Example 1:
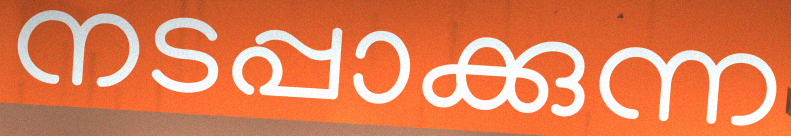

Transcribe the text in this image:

നടപ്പാക്കുന്ന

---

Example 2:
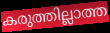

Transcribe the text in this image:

കരുത്തില്ലാത്ത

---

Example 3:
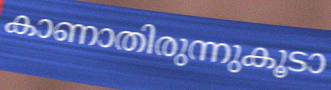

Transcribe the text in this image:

കാണാതിരുന്നുകൂടാ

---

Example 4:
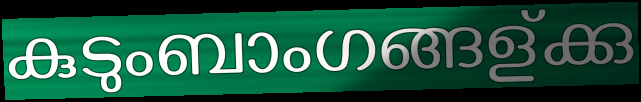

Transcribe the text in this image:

കുടുംബാംഗങ്ങള്ക്കു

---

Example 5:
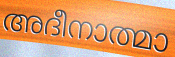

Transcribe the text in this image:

അദീനാത്മാ